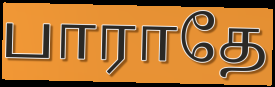
பாராதே